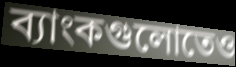
ব্যাংকগুলোতেও